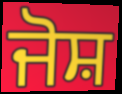
ਜੋਸ਼